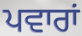
ਪਵਾਰਾਂ